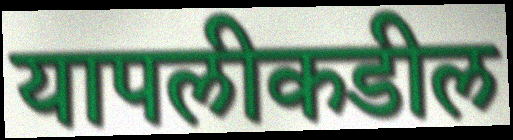
यापलीकडील